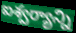
ఐశ్వర్యాన్ని